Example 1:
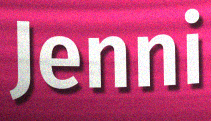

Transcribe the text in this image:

Jenni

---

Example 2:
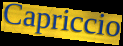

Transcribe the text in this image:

Capriccio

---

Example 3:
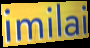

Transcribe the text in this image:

imilai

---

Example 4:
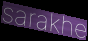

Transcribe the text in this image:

sarakhe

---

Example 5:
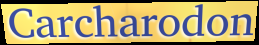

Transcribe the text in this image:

Carcharodon